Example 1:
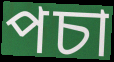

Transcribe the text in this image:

পচা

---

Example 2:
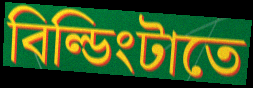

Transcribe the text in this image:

বিল্ডিংটাতে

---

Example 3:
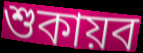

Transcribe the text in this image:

শুকায়ব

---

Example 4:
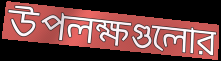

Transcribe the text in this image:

উপলক্ষগুলোর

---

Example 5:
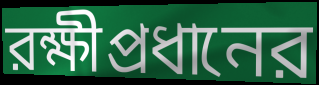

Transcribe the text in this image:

রক্ষীপ্রধানের